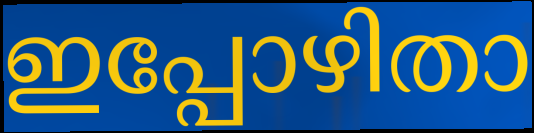
ഇപ്പോഴിതാ